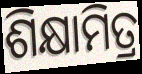
ଶିକ୍ଷାମିତ୍ର